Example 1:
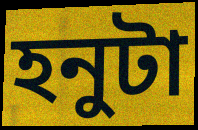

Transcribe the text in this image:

হনুটা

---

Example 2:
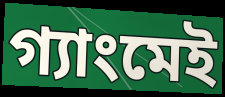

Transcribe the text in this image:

গ্যাংমেই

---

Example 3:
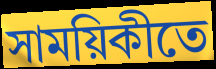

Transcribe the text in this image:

সাময়িকীতে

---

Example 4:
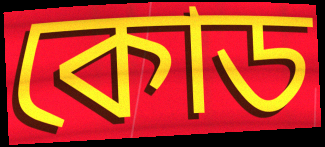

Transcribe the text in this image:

কোড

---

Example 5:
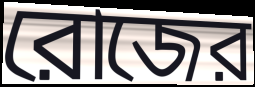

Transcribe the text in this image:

রোজের